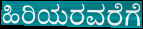
ಹಿರಿಯರವರೆಗೆ